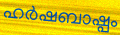
ഹർഷബാഷ്പം